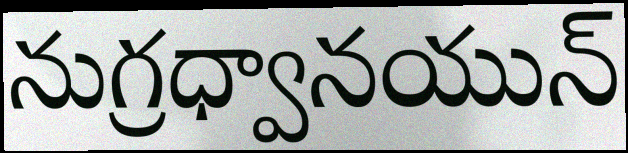
నుగ్రధ్వానయున్